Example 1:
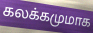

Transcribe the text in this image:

கலக்கமுமாக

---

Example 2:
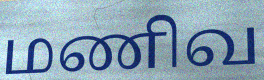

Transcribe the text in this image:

மணிவ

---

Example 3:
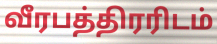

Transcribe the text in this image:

வீரபத்திரரிடம்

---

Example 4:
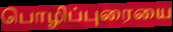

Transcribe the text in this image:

பொழிப்புரையை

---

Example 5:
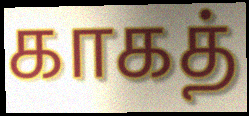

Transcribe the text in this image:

காகத்